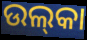
ଉଲ୍‍କା